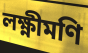
লক্ষ্ণীমণি